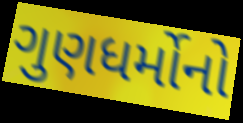
ગુણધર્મોનો